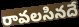
రావలసినదే